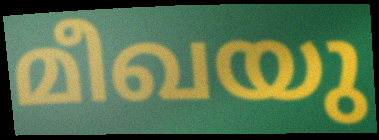
മീഖയു